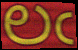
లఁ